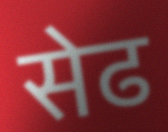
सेढ